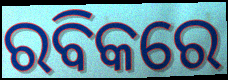
ରବିକରେ